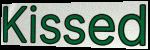
Kissed